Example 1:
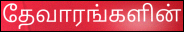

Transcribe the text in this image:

தேவாரங்களின்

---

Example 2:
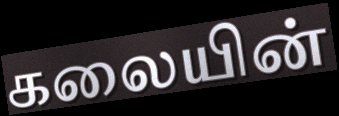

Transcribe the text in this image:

கலையின்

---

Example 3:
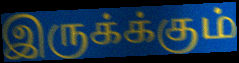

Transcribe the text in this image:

இருக்க்கும்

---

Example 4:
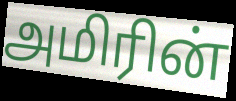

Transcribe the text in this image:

அமிரின்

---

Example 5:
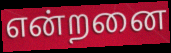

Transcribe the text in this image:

என்றனை